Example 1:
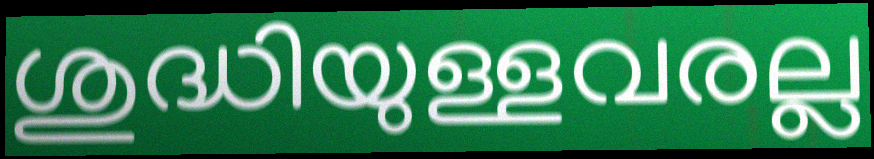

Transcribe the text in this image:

ശുദ്ധിയുള്ളവരല്ല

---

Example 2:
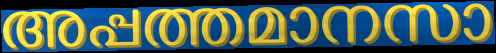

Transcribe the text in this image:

അപ്പത്തമാനസാ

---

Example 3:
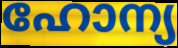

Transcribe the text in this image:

ഹോന്യ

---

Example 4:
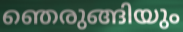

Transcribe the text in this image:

ഞെരുങ്ങിയും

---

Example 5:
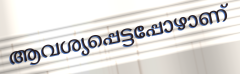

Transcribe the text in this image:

ആവശ്യപ്പെട്ടപ്പോഴാണ്